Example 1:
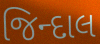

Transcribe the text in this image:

જિન્દાલ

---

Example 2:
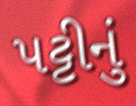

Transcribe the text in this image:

પટ્ટીનું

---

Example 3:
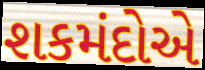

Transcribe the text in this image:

શકમંદોએ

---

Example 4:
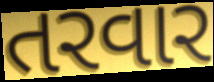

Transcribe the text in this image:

તરવાર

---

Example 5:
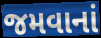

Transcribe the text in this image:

જમવાનાં